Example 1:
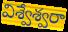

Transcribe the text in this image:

విశ్వేశ్వరా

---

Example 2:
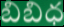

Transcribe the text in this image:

బిబిధ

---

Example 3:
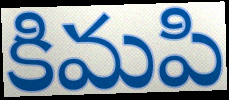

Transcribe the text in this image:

కిమపి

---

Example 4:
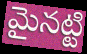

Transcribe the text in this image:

మైనట్టి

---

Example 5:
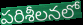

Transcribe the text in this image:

పరిశీలనలో